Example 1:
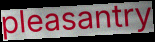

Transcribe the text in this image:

pleasantry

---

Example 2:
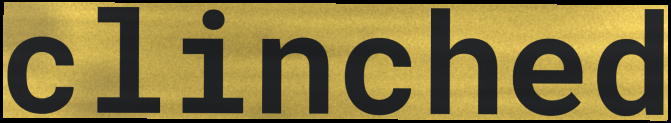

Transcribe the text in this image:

clinched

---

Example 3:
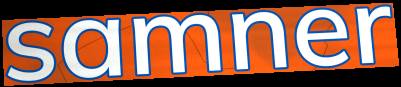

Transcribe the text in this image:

samner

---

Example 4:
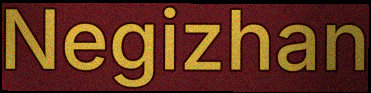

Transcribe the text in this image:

Negizhan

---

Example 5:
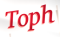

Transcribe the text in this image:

Toph